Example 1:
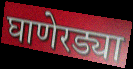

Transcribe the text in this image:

घाणेरड्या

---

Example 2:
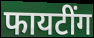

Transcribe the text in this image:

फायटींग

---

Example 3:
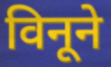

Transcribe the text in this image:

विनूने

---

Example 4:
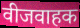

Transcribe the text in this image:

वीजवाहक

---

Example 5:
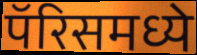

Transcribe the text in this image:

पॅरिसमध्ये